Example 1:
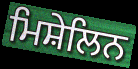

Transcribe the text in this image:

ਮਿਸ਼ੇਲਿਨ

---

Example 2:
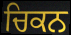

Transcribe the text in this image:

ਚਿਕਨ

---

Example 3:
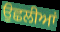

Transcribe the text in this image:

ਉਛਲੀਆਂ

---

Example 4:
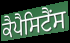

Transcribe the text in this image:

ਕੈਪੈਸਿਟੈਂਸ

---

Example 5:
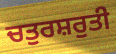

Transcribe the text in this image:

ਚਤੁਰਸ਼ਰੁਤੀ